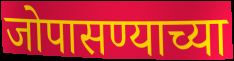
जोपासण्याच्या